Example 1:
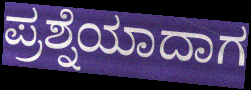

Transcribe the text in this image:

ಪ್ರಶ್ನೆಯಾದಾಗ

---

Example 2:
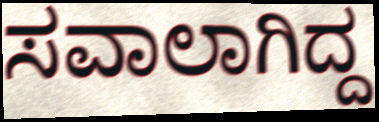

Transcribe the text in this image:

ಸವಾಲಾಗಿದ್ದ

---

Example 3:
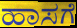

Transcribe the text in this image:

ಹಾಸಗೆ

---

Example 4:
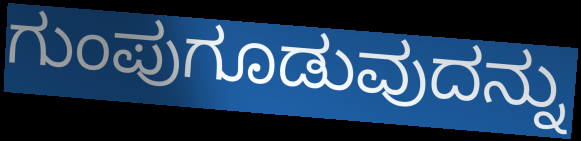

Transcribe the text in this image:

ಗುಂಪುಗೂಡುವುದನ್ನು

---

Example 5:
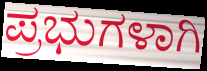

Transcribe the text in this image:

ಪ್ರಭುಗಳಾಗಿ